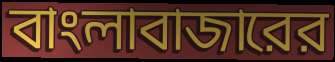
বাংলাবাজারের